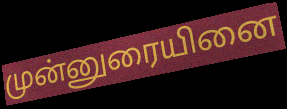
முன்னுரையினை